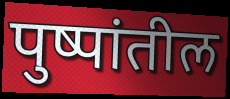
पुष्पांतील